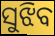
ସୁଝିବ